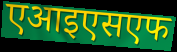
एआइएसएफ